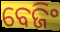
ବେଜିଂ